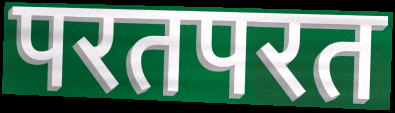
परतपरत